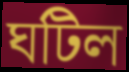
ঘটিল